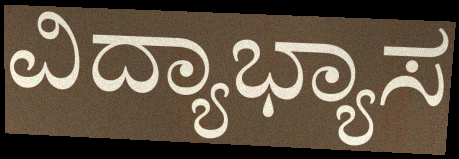
ವಿದ್ಯಾಭ್ಯಾಸ